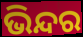
ଭିନ୍ଦର